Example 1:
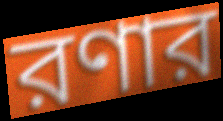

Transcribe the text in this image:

রণার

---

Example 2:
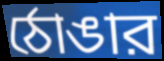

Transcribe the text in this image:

ঠোঙার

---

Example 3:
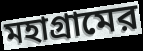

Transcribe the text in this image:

মহাগ্রামের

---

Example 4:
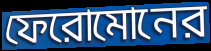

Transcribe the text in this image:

ফেরোমোনের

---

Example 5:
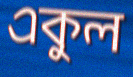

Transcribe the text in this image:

একুল